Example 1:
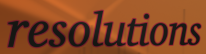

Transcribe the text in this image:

resolutions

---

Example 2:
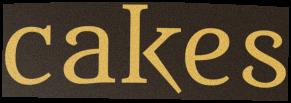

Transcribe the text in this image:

cakes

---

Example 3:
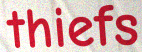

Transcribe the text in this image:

thiefs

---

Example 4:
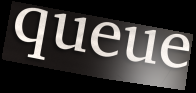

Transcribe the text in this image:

queue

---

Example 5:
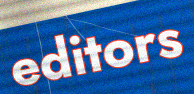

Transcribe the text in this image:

editors